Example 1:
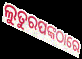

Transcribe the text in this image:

ଲୁତୁରପଙ୍କଠାରେ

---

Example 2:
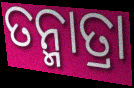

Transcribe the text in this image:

ତନ୍ମାତ୍ରା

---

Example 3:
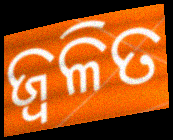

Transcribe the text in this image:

ଜ୍ୱଳିତ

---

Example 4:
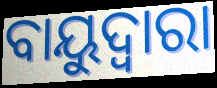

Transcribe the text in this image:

ବାୟୁଦ୍ୱାରା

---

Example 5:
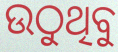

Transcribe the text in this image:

ଉଠୁଥିବୁ